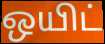
ஒயிட்